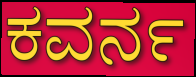
ಕವರ್ನ